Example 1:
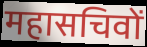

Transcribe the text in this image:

महासचिवों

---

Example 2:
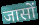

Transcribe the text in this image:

जासों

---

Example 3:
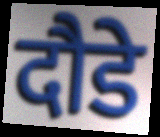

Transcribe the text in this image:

दौडे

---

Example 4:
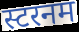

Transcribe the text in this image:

स्टरनम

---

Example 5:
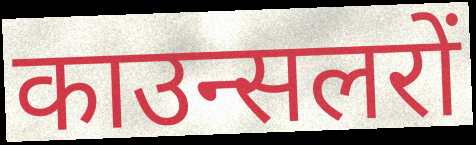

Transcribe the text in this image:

काउन्सलरों